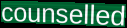
counselled